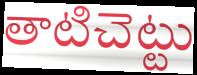
తాటిచెట్టు